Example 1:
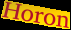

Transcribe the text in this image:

Horon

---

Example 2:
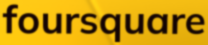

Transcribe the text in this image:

foursquare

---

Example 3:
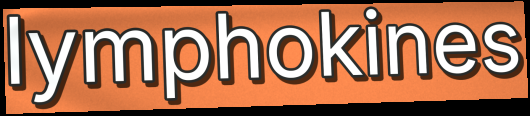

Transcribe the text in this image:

lymphokines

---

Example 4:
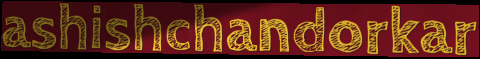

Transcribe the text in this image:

ashishchandorkar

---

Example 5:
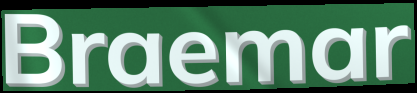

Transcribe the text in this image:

Braemar